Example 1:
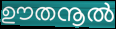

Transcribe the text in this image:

ഊതനൂൽ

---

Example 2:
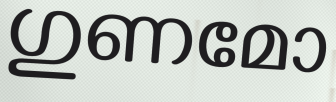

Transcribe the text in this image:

ഗുണമോ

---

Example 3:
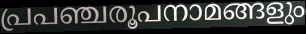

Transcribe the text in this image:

പ്രപഞ്ചരൂപനാമങ്ങളും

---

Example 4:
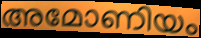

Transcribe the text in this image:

അമോണിയം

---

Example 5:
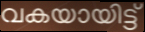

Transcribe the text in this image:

വകയായിട്ട്